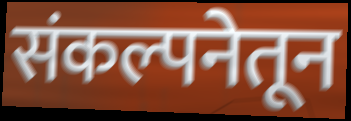
संकल्पनेतून